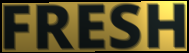
FRESH